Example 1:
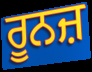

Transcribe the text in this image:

ਰੂਨਜ਼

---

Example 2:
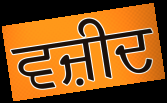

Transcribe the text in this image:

ਵਜ਼ੀਦ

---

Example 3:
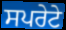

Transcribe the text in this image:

ਸਪਰੇਟੇ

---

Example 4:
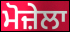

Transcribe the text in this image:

ਮੋਜ਼ੇਲਾ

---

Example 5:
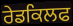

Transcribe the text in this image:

ਰੇਡਕਿਲਫ